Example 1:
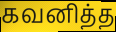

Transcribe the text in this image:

கவனித்த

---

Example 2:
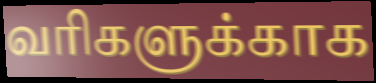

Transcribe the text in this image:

வரிகளுக்காக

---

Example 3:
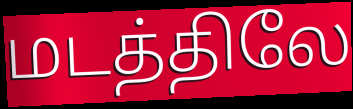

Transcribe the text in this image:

மடத்திலே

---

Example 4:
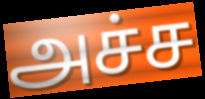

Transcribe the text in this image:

அச்ச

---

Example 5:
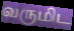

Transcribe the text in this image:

வருமிட